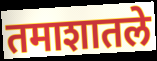
तमाशातले